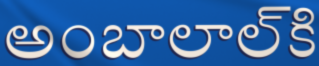
అంబాలాల్‌కి